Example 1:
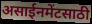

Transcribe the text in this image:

असाईनमेंटसाठी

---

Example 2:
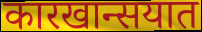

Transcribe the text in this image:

कारखान्सयात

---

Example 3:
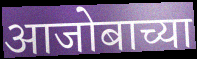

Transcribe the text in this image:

आजोबाच्या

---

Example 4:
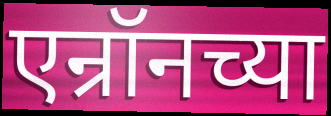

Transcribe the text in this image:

एन्रॉनच्या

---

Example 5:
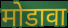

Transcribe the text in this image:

मोडावा